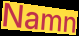
Namn